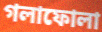
গলাফোলা